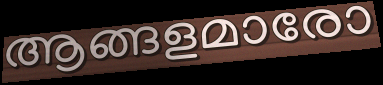
ആങ്ങളമാരോ